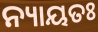
ନ୍ୟାୟତଃ